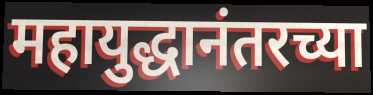
महायुद्धानंतरच्या